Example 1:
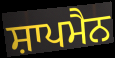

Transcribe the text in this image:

ਸ਼ਾਪਮੈਨ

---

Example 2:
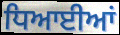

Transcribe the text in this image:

ਧਿਆਈਆਂ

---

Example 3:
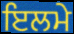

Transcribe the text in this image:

ਇਲਮੇ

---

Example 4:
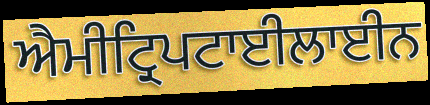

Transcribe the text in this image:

ਐਮੀਟ੍ਰਿਪਟਾਈਲਾਈਨ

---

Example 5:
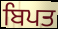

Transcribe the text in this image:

ਬਿਪਤ